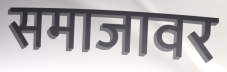
समाजावर